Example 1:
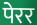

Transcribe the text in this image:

पेरर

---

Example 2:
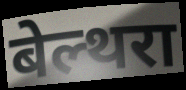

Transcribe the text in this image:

बेल्थरा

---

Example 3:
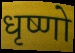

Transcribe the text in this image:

धृष्णो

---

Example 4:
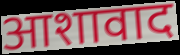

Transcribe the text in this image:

आशावाद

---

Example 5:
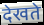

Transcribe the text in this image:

देखते